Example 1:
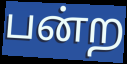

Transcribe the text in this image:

பன்ற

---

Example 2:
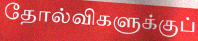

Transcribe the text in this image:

தோல்விகளுக்குப்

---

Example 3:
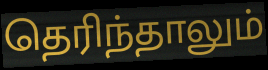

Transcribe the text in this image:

தெரிந்தாலும்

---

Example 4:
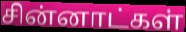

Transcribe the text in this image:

சின்னாட்கள்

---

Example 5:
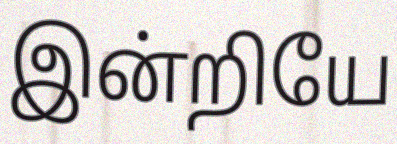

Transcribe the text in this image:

இன்றியே